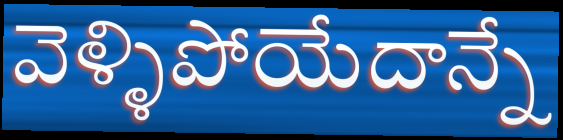
వెళ్ళిపోయేదాన్నే